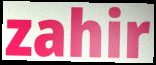
zahir